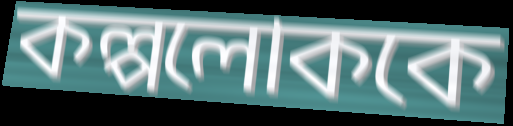
কল্পলোককে